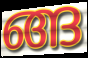
ങ്ങ